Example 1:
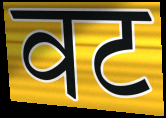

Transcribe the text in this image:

वट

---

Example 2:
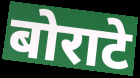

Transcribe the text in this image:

बोराटे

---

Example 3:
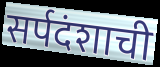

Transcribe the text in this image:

सर्पदंशाची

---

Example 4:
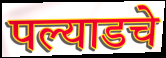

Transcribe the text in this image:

पल्याडचे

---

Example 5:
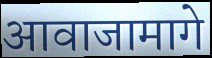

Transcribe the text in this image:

आवाजामागे